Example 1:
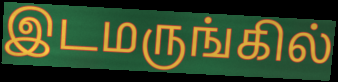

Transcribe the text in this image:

இடமருங்கில்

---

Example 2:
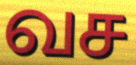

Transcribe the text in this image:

வச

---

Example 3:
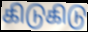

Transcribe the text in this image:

கிடுகிடு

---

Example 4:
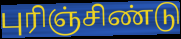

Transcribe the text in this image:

புரிஞ்சிண்டு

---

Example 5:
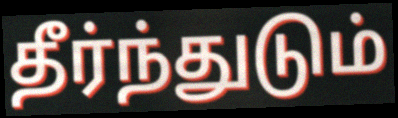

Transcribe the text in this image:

தீர்ந்துடும்